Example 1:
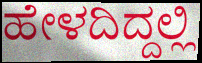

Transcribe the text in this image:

ಹೇಳದಿದ್ದಲ್ಲಿ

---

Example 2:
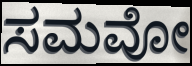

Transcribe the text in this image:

ಸಮವೋ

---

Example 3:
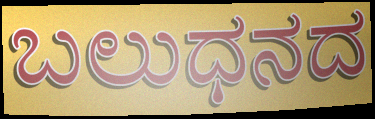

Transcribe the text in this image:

ಬಲುಧನದ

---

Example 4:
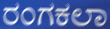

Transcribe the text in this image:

ರಂಗಕಲಾ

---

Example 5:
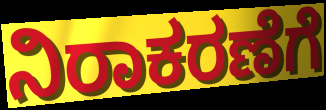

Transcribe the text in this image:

ನಿರಾಕರಣೆಗೆ